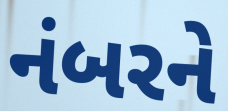
નંબરને